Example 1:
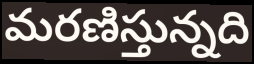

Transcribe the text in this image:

మరణిస్తున్నది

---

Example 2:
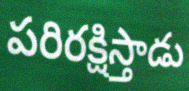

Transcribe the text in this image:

పరిరక్షిస్తాడు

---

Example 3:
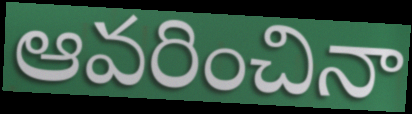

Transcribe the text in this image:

ఆవరించినా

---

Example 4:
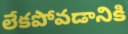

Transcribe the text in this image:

లేకపోవడానికి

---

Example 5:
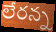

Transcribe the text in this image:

లేరన్న